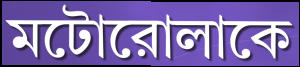
মটোরোলাকে